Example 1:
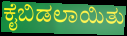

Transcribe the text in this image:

ಕೈಬಿಡಲಾಯಿತು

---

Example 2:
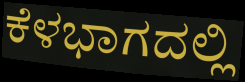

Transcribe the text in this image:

ಕೆಳಭಾಗದಲ್ಲಿ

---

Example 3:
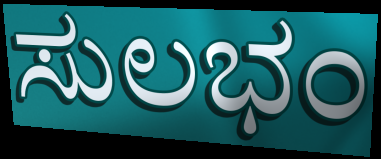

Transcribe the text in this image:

ಸುಲಭಂ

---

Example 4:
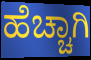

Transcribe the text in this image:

ಹೆಚ್ಚಾಗಿ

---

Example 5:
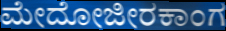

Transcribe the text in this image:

ಮೇದೋಜೀರಕಾಂಗ